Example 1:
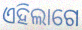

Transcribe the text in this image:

ଏହିଲାଗେ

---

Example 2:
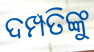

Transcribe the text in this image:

ଦମ୍ପତିଙ୍କୁ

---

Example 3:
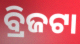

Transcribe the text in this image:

ବ୍ରିଜଟା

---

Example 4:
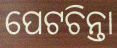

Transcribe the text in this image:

ପେଟଚିନ୍ତା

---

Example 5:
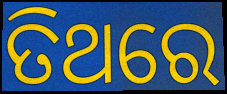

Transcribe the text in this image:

ତିଥରେ